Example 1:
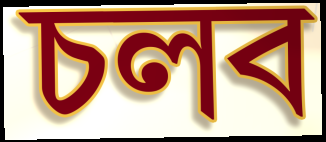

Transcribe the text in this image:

চলব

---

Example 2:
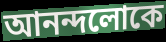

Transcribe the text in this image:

আনন্দলোকে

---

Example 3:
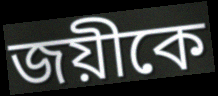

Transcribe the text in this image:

জয়ীকে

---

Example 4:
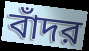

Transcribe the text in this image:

বাঁদর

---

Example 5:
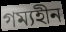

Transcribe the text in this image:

গম্যহীন